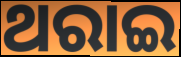
ଥରାଇ